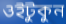
ওইটুকুন